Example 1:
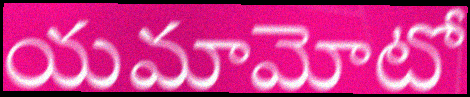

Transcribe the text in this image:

యమామోటో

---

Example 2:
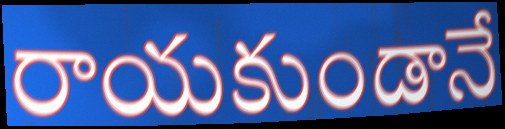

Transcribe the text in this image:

రాయకుండానే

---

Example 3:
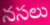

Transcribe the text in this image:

నసలు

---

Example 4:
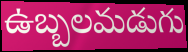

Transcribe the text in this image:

ఉబ్బలమడుగు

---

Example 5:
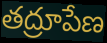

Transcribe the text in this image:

తద్రూపేణ